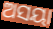
ଅସୟା